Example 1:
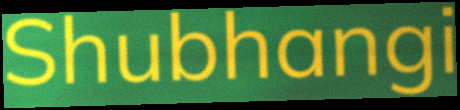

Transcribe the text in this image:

Shubhangi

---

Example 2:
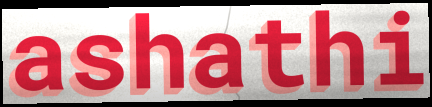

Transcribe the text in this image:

ashathi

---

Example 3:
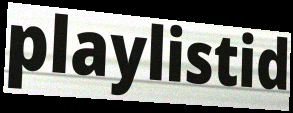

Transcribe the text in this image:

playlistid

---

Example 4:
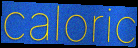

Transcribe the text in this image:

caloric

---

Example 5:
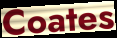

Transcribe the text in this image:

Coates